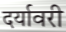
दर्यावरी